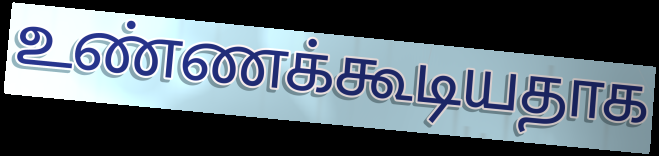
உண்ணக்கூடியதாக